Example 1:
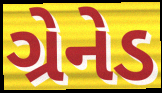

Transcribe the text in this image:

ગ્રેનેડ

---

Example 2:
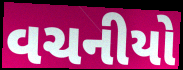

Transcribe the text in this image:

વચનીયો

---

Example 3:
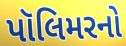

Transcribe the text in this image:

પૉલિમરનો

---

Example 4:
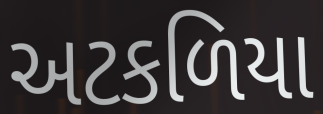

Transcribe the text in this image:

અટકળિયા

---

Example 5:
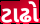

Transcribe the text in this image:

ટાઢો